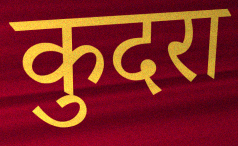
कुदरा